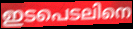
ഇടപെടലിനെ